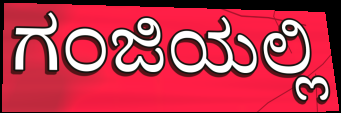
ಗಂಜಿಯಲ್ಲಿ